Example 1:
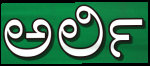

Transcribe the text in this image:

ಅರ್ಲಿ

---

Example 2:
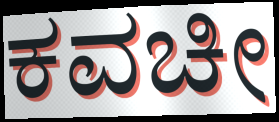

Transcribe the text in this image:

ಕವಚೀ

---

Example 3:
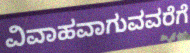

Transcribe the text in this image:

ವಿವಾಹವಾಗುವವರೆಗೆ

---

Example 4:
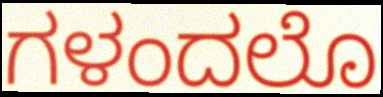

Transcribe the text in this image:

ಗಳಂದಲೊ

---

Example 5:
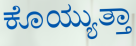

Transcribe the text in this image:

ಕೊಯ್ಯುತ್ತಾ